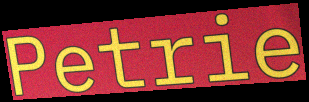
Petrie